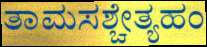
ತಾಮಸಶ್ಚೇತ್ಯಹಂ